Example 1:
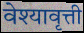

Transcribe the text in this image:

वेश्यावृत्ती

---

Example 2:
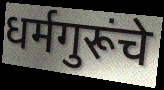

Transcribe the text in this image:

धर्मगुरूंचे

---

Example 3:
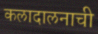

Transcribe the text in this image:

कलादालनाची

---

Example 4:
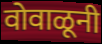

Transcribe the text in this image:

वोवाळूनी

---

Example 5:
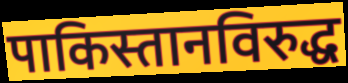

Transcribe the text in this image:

पाकिस्तानविरुद्ध